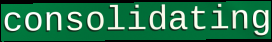
consolidating